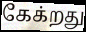
கேக்றது